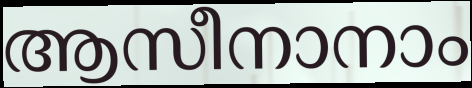
ആസീനാനാം